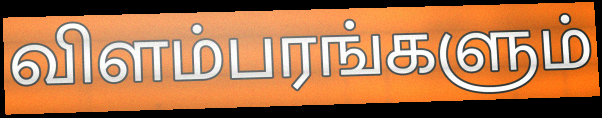
விளம்பரங்களும்